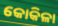
କୋକିଳା